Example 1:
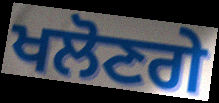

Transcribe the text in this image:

ਖਲੋਣਗੇ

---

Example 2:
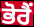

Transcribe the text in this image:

ਭੋਰੈਂ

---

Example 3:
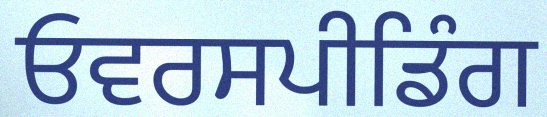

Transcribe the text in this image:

ਓਵਰਸਪੀਡਿੰਗ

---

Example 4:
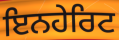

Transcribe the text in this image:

ਇਨਹੇਰਿਟ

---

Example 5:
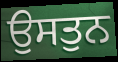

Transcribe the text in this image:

ਉਸਤੁਨ